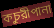
কচুরীপানা